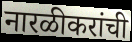
नारळीकरांची